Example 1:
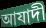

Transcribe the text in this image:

আযাদী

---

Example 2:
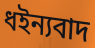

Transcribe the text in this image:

ধইন্যবাদ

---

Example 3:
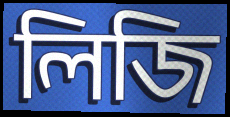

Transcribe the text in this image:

লিজি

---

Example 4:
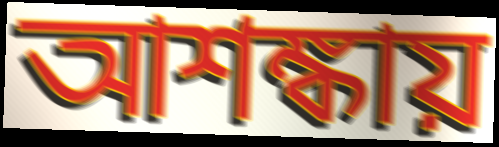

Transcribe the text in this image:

আশঙ্কায়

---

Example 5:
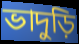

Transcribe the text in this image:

ভাদুড়ি